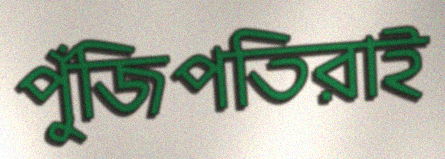
পুঁজিপতিরাই